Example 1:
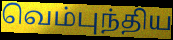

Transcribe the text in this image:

வெம்புந்திய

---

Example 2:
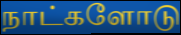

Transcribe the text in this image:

நாட்களோடு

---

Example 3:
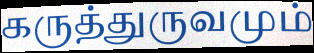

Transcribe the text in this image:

கருத்துருவமும்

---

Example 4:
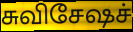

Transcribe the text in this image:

சுவிசேஷச்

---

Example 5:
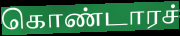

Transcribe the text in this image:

கொண்டாரச்